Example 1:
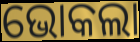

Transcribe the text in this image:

ଭୋକଲା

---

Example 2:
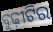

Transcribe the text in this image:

ବୁଢ଼ୀଟିର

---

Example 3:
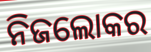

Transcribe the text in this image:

ନିଜଲୋକର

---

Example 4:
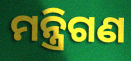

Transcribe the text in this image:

ମନ୍ତ୍ରିଗଣ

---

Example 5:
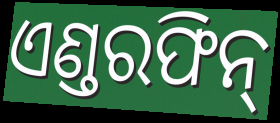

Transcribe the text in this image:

ଏଣ୍ଡରଫିନ୍